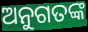
ଅନୁଗତଙ୍କ